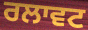
ਰਲਾਵਟ